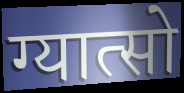
ग्यात्सो